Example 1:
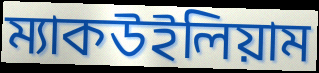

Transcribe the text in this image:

ম্যাকউইলিয়াম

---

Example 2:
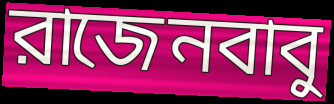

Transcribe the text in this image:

রাজেনবাবু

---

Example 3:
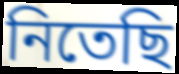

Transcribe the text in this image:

নিতেছি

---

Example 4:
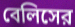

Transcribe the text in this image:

বেলিসের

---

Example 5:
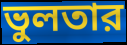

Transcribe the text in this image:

ভুলতার